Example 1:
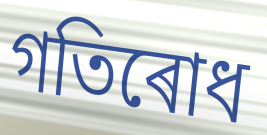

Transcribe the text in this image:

গতিৰোধ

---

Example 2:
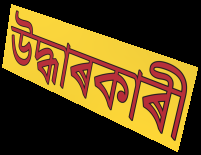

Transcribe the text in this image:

উদ্ধাৰকাৰী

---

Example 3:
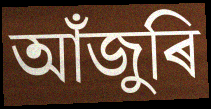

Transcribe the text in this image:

আঁজুৰি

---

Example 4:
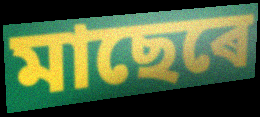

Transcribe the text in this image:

মাছেৰে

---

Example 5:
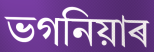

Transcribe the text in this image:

ভগনিয়াৰ